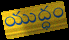
యుద్ధం